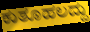
ಕುತೂಹಲದ್ದು